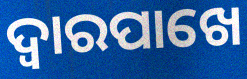
ଦ୍ୱାରପାଖେ